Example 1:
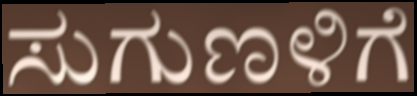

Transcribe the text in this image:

ಸುಗುಣಳಿಗೆ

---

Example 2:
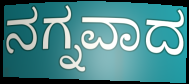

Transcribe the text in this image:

ನಗ್ನವಾದ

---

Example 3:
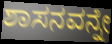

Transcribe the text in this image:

ಶಾಸನವನ್ನೇ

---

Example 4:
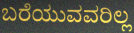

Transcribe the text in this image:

ಬರೆಯುವವರಿಲ್ಲ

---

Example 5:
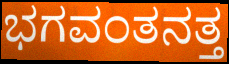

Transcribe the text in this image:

ಭಗವಂತನತ್ತ